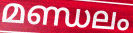
മണ്ഡലം